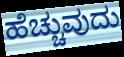
ಹೆಚ್ಚುವುದು